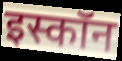
इस्कॉन